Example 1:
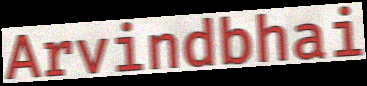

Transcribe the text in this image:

Arvindbhai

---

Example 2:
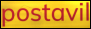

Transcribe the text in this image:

postavil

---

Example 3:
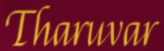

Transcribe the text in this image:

Tharuvar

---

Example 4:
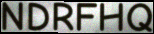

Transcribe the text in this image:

NDRFHQ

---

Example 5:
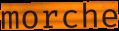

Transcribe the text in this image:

morche